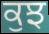
ਕੁਝ